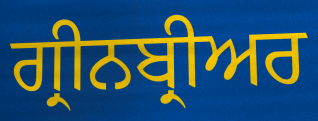
ਗ੍ਰੀਨਬ੍ਰੀਅਰ